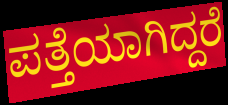
ಪತ್ತೆಯಾಗಿದ್ದರೆ